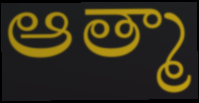
ఆత్మా